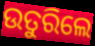
ଉତୁରିଲେ